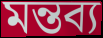
মন্তব্য